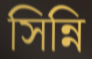
সিন্নি